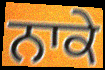
ਨਾਕੇ